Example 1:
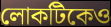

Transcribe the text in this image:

লোকটিকেও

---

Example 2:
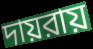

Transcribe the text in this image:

দায়রায়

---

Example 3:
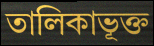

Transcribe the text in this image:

তালিকাভূক্ত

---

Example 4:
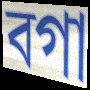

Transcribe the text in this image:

বগা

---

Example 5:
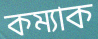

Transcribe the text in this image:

কম্যাক